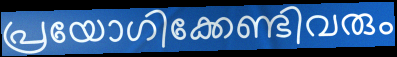
പ്രയോഗിക്കേണ്ടിവരും